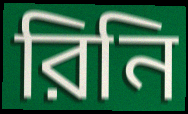
রিনি